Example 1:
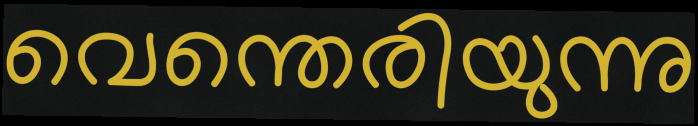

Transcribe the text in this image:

വെന്തെരിയുന്നു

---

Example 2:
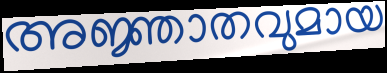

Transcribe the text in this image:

അജ്ഞാതവുമായ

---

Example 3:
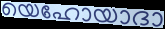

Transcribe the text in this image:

യെഹോയാദാ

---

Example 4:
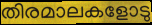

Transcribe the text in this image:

തിരമാലകളോടു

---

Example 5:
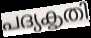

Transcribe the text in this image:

പദ്യകൃതി